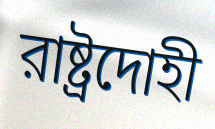
রাষ্ট্রদোহী